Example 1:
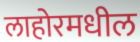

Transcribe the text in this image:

लाहोरमधील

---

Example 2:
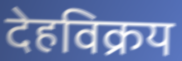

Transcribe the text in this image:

देहविक्रय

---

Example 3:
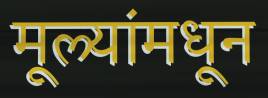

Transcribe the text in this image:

मूल्यांमधून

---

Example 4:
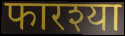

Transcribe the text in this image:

फारश्या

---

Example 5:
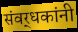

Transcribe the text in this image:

संवर्धकांनी